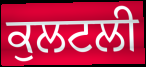
ਕੁਲਟਲੀ